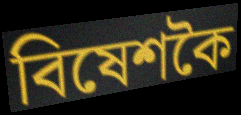
বিষেশকৈ